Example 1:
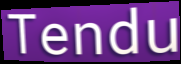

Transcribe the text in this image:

Tendu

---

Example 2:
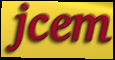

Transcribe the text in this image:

jcem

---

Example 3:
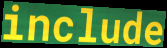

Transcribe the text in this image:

include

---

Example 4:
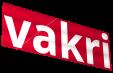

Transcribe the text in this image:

vakri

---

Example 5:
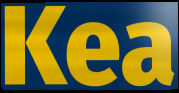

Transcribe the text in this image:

Kea